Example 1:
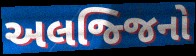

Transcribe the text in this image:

અલજ્જિનો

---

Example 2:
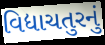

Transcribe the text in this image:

વિદ્યાચતુરનું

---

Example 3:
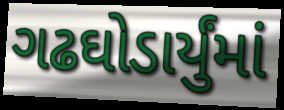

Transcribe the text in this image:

ગઢઘોડાર્યુંમાં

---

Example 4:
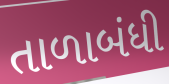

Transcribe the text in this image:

તાળાબંધી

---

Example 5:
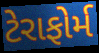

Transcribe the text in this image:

ટેરાફોર્મ